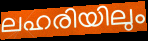
ലഹരിയിലും